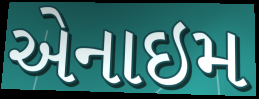
એનાઇમ